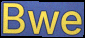
Bwe